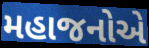
મહાજનોએ